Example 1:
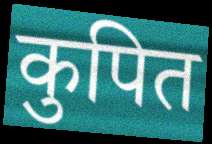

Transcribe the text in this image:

कुपित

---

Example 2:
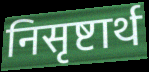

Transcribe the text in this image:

निसृष्टार्थ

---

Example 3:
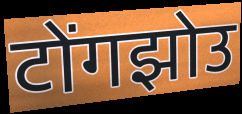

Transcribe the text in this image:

टोंगझोउ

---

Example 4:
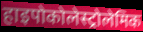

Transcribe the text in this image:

हाइपोकोलेस्ट्रोलेमिक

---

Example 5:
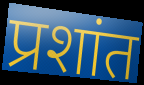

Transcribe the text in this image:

प्रशांत